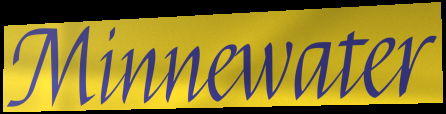
Minnewater